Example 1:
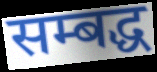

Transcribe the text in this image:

सम्बद्ध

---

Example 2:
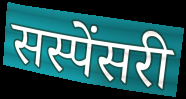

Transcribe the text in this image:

सस्पेंसरी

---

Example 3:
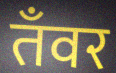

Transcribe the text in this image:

तँवर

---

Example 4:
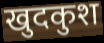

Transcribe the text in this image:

खुदकुश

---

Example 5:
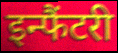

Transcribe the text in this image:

इन्फैंटरी